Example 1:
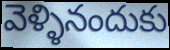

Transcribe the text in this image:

వెళ్ళినందుకు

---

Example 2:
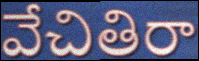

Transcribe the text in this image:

వేచితిరా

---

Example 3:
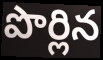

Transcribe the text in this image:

పొర్లిన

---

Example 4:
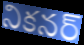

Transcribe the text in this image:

నికనర్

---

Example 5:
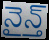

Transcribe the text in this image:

నైన్త్